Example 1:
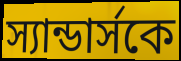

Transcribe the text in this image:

স্যান্ডার্সকে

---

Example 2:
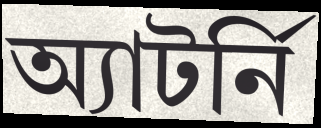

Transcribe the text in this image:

অ্যাটর্নি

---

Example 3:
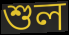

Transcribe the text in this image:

শুল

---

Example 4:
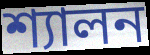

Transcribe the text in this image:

শ্যালন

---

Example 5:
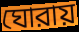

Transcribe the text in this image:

ঘোরায়